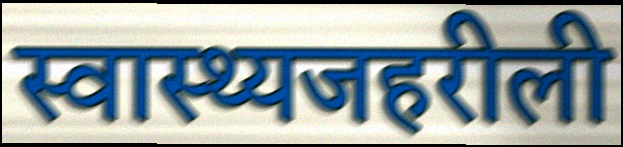
स्वास्थ्यजहरीली